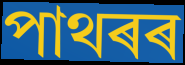
পাথৰৰ